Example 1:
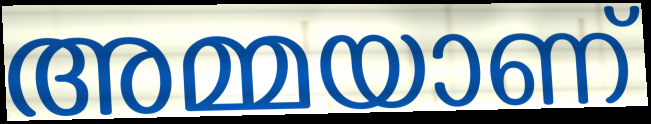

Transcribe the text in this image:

അമ്മയാണ്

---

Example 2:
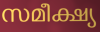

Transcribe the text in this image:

സമീക്ഷ്യ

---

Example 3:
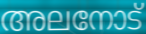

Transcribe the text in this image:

അലനോട്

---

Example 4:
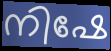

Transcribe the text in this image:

നിഷേ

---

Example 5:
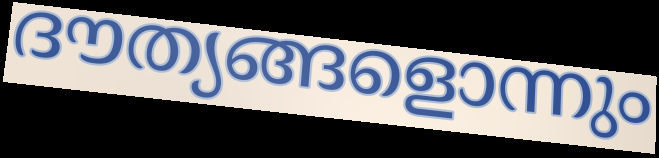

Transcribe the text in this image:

ദൗത്യങ്ങളൊന്നും